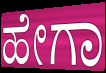
ಹೇಗಾ